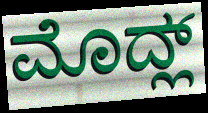
ಮೊದ್ಲ್